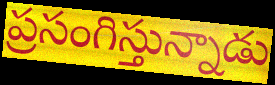
ప్రసంగిస్తున్నాడు